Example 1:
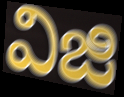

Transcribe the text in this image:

విజి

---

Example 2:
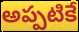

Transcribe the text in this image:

అప్పటికే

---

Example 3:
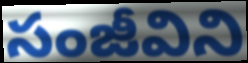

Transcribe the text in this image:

సంజీవిని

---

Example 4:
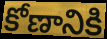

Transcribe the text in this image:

కోణానికి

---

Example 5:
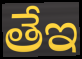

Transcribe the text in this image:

తేఇ